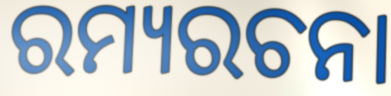
ରମ୍ୟରଚନା